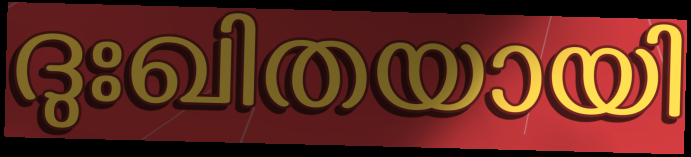
ദുഃഖിതയായി